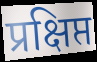
प्रक्षिप्त